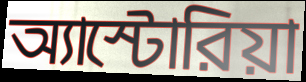
অ্যাস্টোরিয়া